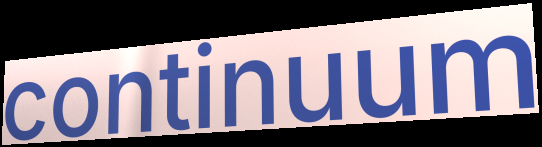
continuum